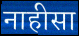
नाहीसा